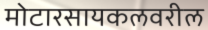
मोटारसायकलवरील